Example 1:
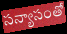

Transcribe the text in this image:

సన్యాసంతో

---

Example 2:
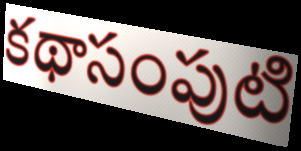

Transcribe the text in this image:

కథాసంపుటి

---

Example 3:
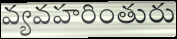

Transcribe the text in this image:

వ్యవహరింతురు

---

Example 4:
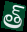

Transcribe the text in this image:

త్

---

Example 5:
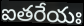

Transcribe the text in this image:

ఐతరేయః